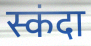
स्कंदा